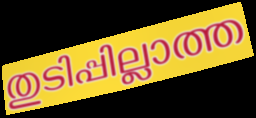
തുടിപ്പില്ലാത്ത